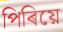
পিৰিয়ে